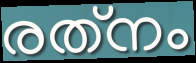
രത്‌നം